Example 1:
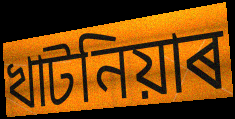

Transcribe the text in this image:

খাটনিয়াৰ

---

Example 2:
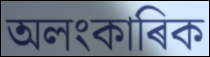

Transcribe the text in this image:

অলংকাৰিক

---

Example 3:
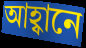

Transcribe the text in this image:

আহ্বানে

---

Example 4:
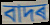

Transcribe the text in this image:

বাদৰ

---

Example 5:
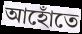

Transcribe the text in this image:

আহোঁতে